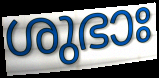
ശുഭാഃ